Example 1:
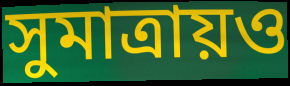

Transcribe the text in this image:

সুমাত্রায়ও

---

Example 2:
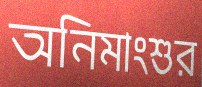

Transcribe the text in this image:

অনিমাংশুর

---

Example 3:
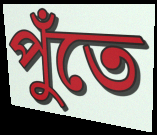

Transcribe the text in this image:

পুঁতে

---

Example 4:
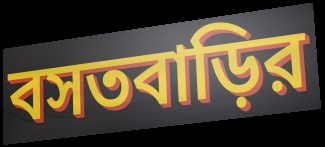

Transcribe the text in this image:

বসতবাড়ির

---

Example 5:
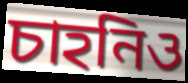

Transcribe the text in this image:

চাহনিও